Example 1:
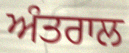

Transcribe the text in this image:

ਅੰਤਰਾਲ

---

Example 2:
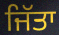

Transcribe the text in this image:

ਜਿੱਤਾ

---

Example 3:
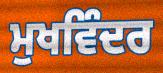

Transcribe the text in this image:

ਮੁਖਵਿੰਦਰ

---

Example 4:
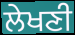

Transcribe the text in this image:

ਲੇਖਣੀ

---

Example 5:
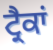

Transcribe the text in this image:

ਟ੍ਰੈਕਾਂ